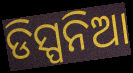
ଡିସ୍ପନିଆ